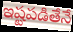
ఇష్టపడితేనే